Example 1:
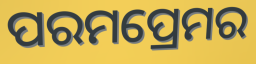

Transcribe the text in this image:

ପରମପ୍ରେମର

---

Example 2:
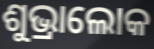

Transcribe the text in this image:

ଶୁଭ୍ରାଲୋକ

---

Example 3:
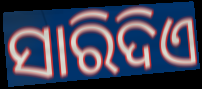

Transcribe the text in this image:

ସାରିଦିଏ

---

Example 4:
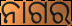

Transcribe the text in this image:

ନାଗର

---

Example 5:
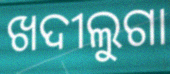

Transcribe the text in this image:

ଖଦୀଲୁଗା